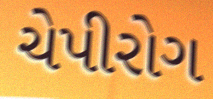
ચેપીરોગ